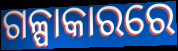
ଗଳ୍ପାକାରରେ